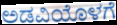
ಅಡವಿಯೊಳಗೆ